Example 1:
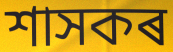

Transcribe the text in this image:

শাসকৰ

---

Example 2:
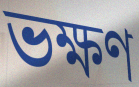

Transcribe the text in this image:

ভক্ষণ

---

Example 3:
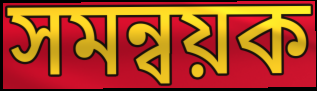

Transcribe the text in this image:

সমন্বয়ক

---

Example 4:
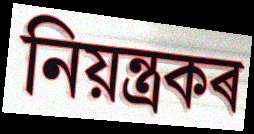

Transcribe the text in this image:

নিয়ন্ত্ৰকৰ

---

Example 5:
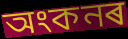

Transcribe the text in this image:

অংকনৰ